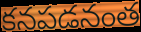
కనపడనంత